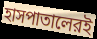
হাসপাতালেরই